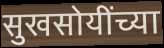
सुखसोयींच्या